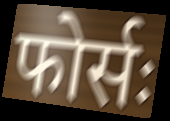
फोर्सः